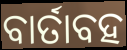
ବାର୍ତାବହ